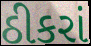
ઠીકરાં